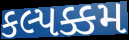
કલ્પક્કમ